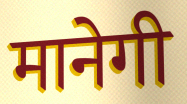
मानेगी